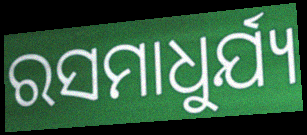
ରସମାଧୁର୍ଯ୍ୟ